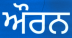
ਔਰਨ